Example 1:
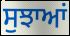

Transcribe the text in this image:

ਸੁਝਾਆਂ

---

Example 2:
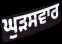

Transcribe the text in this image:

ਘੁੜਸਵਾਰ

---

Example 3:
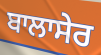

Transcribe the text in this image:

ਬਾਲਾਸੇਰ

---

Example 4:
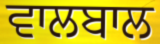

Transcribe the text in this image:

ਵਾਲਬਾਲ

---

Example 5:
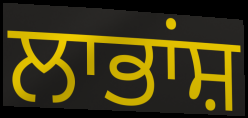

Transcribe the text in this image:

ਲਾਭਾਂਸ਼